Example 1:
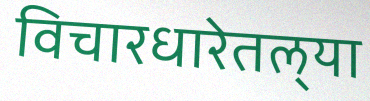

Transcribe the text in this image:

विचारधारेतल्या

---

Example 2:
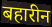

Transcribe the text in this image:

बहारीन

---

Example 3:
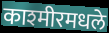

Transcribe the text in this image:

काश्‍मीरमधले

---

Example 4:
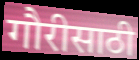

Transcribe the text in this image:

गौरीसाठी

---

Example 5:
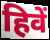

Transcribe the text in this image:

हिवें